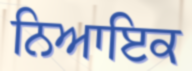
ਨਿਆਇਕ